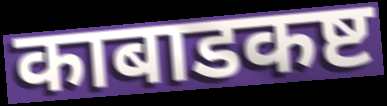
काबाडकष्ट